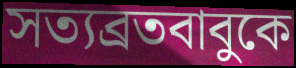
সত্যব্রতবাবুকে